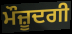
ਮੌਜ਼ੂਦਗੀ